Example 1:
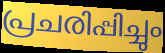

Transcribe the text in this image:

പ്രചരിപ്പിച്ചും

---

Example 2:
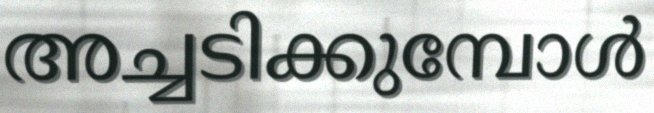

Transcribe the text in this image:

അച്ചടിക്കുമ്പോൾ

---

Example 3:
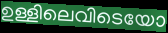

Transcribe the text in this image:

ഉള്ളിലെവിടെയോ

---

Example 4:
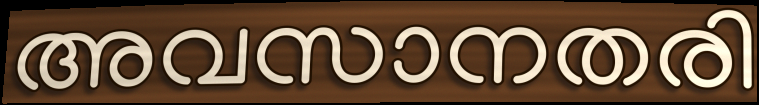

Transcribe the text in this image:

അവസാനതരി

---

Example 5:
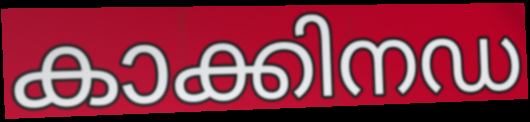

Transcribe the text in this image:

കാക്കിനഡ